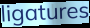
ligatures